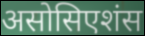
असोसिएशंस